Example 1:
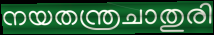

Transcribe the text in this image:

നയതന്ത്രചാതുരി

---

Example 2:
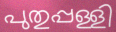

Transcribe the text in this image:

പുതുപ്പള്ളി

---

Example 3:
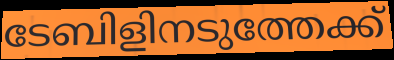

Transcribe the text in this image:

ടേബിളിനടുത്തേക്ക്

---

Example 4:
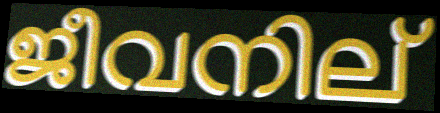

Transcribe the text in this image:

ജീവനില്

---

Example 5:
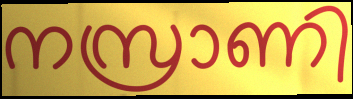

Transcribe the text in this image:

നസ്രാണി